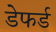
डेफर्ड